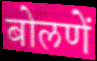
बोलणें